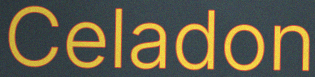
Celadon